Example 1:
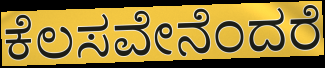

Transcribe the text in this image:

ಕೆಲಸವೇನೆಂದರೆ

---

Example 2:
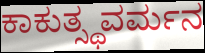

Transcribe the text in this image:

ಕಾಕುತ್ಸ್ಥವರ್ಮನ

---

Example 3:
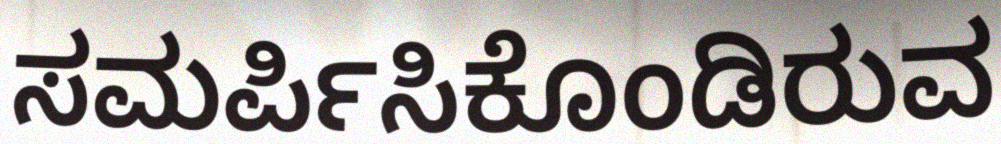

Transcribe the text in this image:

ಸಮರ್ಪಿಸಿಕೊಂಡಿರುವ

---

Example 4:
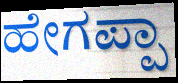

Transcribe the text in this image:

ಹೇಗಪ್ಪಾ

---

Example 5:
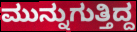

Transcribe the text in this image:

ಮುನ್ನುಗುತ್ತಿದ್ದ